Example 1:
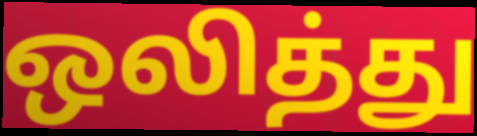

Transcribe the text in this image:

ஒலித்து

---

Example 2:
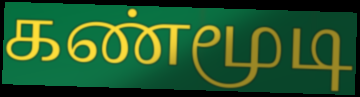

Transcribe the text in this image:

கண்மூடி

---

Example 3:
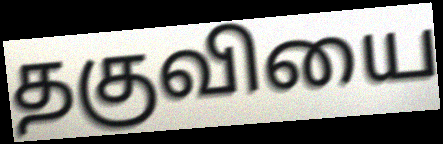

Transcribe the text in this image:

தகுவியை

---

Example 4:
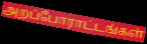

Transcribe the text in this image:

அறப்போராட்டங்கள்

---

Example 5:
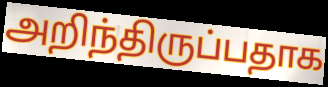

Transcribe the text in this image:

அறிந்திருப்பதாக